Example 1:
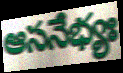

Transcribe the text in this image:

ఆసనేభ్యః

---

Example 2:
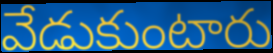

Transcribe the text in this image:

వేడుకుంటారు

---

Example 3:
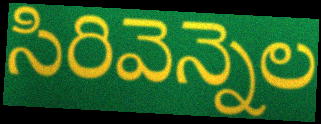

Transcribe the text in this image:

సిరివెన్నెల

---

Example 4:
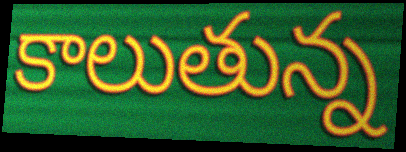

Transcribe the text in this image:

కాలుతున్న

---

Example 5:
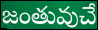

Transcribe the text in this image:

జంతువుచే